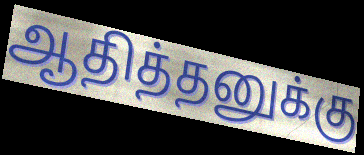
ஆதித்தனுக்கு